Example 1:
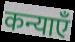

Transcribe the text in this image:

कन्याएँ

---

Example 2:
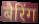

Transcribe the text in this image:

बैरिंग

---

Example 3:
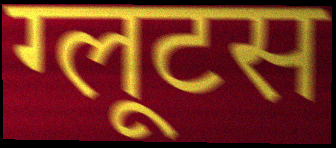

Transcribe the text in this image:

ग्लूटस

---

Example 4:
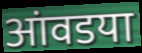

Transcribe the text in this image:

आंवडया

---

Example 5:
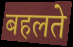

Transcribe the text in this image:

बहलते